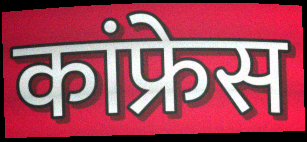
कांफ्रेस